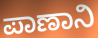
ಪಾಣಾನಿ